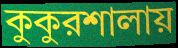
কুকুরশালায়